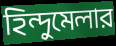
হিন্দুমেলার